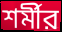
শর্মীর